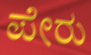
ಪೇರು